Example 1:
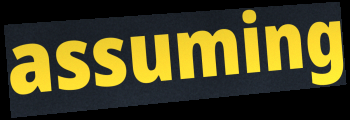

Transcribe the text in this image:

assuming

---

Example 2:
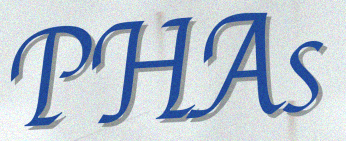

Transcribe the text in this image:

PHAs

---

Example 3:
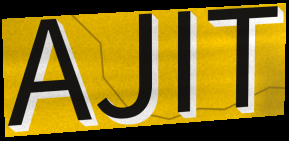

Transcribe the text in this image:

AJIT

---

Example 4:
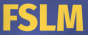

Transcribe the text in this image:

FSLM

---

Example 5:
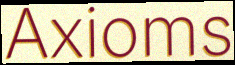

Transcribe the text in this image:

Axioms